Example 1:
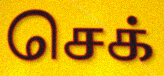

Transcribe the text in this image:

செக்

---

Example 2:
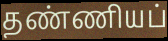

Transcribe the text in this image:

தண்ணியப்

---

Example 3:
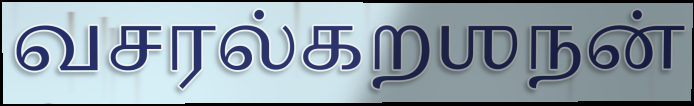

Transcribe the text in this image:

வசரல்கறஶநன்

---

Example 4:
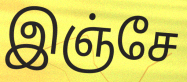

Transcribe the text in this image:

இஞ்சே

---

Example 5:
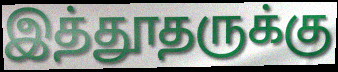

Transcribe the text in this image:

இத்தூதருக்கு